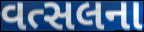
વત્સલના